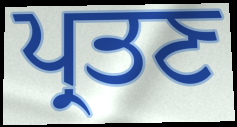
ਪ੍ਰਤਣ